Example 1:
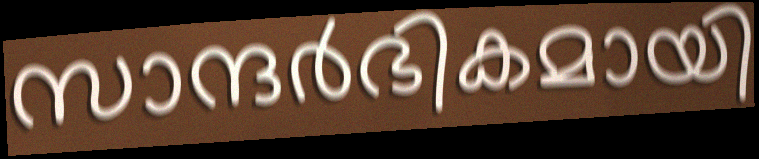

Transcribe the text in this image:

സാന്ദർഭികമായി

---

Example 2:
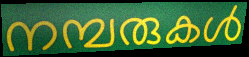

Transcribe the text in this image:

നമ്പരുകൾ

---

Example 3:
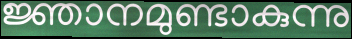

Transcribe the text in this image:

ജ്ഞാനമുണ്ടാകുന്നു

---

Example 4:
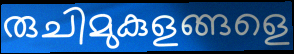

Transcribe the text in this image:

രുചിമുകുളങ്ങളെ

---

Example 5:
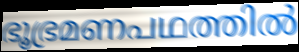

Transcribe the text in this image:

ഭൂഭ്രമണപഥത്തിൽ